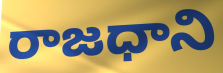
రాజధాని